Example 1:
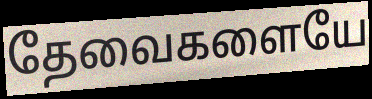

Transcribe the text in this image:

தேவைகளையே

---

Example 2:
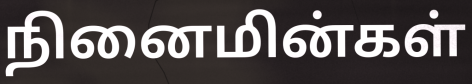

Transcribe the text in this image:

நினைமின்கள்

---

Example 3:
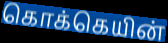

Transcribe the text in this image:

கொக்கெயின்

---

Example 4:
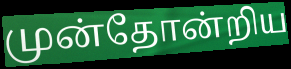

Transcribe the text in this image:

முன்தோன்றிய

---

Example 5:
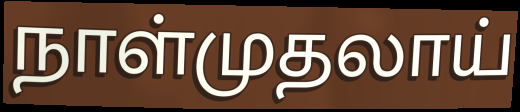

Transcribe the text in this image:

நாள்முதலாய்